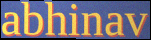
abhinav